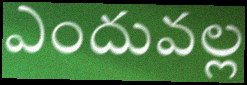
ఎందువల్ల